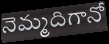
నెమ్మదిగానో